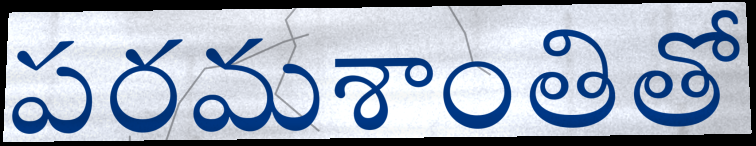
పరమశాంతితో